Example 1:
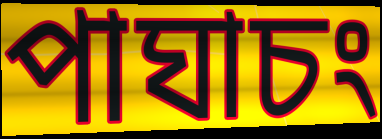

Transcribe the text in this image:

পাঘাচং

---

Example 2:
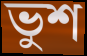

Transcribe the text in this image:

ভুশ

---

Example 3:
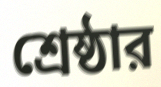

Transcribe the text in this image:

শ্রেষ্ঠার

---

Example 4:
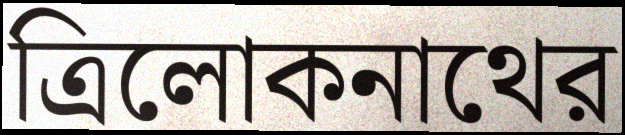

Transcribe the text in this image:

ত্রিলোকনাথের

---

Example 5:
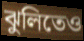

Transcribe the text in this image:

ঝুলিতেও